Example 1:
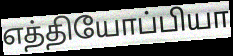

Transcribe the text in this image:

எத்தியோப்பியா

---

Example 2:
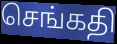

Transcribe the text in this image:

செங்கதி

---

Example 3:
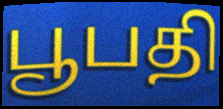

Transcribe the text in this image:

பூபதி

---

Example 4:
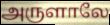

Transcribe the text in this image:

அருளாலே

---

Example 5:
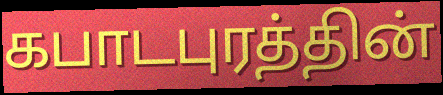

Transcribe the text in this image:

கபாடபுரத்தின்